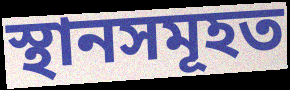
স্থানসমূহত